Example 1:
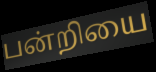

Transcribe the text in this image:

பன்றியை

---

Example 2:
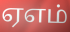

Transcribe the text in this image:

ஏஎம்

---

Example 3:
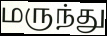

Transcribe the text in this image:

மருந்து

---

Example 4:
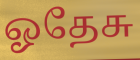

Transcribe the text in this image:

ஓதேசு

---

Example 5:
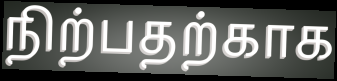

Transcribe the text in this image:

நிற்பதற்காக